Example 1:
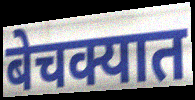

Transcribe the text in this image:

बेचक्यात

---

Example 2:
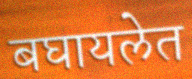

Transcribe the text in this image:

बघायलेत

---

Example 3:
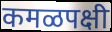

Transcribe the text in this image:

कमळपक्षी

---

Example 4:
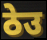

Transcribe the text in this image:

ठेउ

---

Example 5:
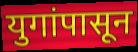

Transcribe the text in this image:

युगांपासून